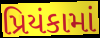
પ્રિયંકામાં